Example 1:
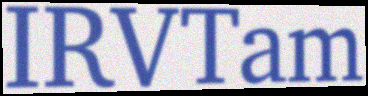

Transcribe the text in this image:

IRVTam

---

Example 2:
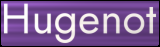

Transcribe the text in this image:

Hugenot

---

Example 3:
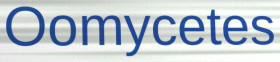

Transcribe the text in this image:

Oomycetes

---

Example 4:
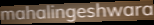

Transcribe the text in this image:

mahalingeshwara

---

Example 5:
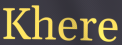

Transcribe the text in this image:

Khere